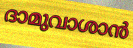
ദാമുവാശാൻ